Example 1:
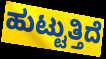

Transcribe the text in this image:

ಹುಟ್ಟುತ್ತಿದೆ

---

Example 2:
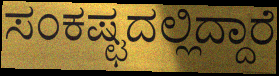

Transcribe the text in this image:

ಸಂಕಷ್ಟದಲ್ಲಿದ್ದಾರೆ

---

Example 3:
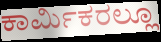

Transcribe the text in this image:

ಕಾರ್ಮಿಕರಲ್ಲೂ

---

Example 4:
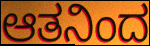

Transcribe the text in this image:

ಆತನಿಂದ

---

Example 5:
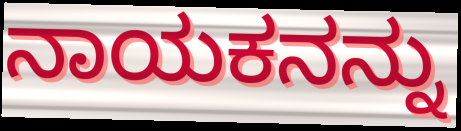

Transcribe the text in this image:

ನಾಯಕನನ್ನು